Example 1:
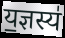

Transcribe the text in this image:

य॒ज्ञस्य॑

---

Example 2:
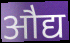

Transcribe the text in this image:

औद्य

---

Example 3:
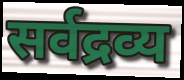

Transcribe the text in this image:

सर्वद्रव्य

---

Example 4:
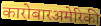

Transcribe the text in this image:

कारोबारअमेरिकी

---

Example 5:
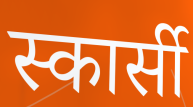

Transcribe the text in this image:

स्कार्सी